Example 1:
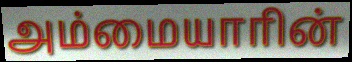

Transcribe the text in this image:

அம்மையாரின்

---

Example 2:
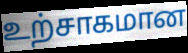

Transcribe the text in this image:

உற்சாகமான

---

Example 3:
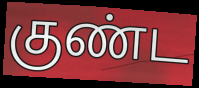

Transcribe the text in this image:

குண்ட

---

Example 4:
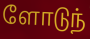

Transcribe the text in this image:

ளோடுந்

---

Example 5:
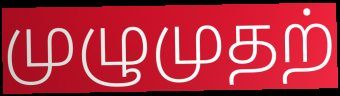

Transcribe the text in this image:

முழுமுதற்